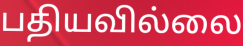
பதியவில்லை